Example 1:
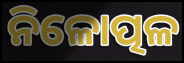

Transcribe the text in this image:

ନିଳୋତ୍ପଳ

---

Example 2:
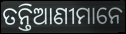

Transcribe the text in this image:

ତନ୍ତିଆଣୀମାନେ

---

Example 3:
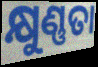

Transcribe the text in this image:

କ୍ଷୁଣ୍ଣତା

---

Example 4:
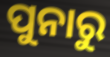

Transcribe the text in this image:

ପୁନାରୁ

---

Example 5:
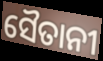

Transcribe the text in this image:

ସୈତାନୀ